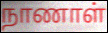
நாணாள்